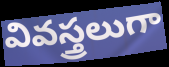
వివస్త్రలుగా